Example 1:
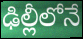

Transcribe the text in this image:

ఢిల్లీలోనే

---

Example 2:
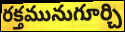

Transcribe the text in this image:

రక్తమునుగూర్చి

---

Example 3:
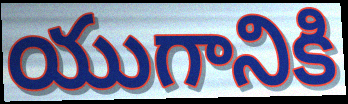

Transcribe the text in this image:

యుగానికి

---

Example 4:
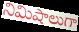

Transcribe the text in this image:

నిమిషాలుగా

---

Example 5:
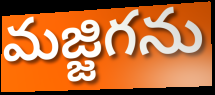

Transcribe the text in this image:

మజ్జిగను